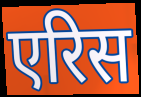
एरिस